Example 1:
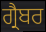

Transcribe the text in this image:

ਗ੍ਰੈਬਰ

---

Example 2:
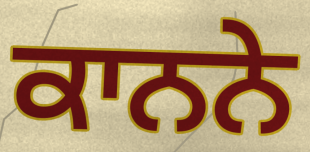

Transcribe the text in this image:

ਕਾਨਨੇ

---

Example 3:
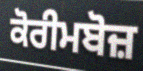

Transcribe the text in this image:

ਕੋਰੀਮਬੋਜ਼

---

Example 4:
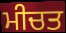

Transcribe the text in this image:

ਮੀਚਤ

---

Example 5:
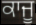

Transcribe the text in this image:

ਕਾਜੂ